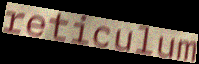
reticulum